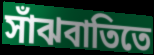
সাঁঝবাতিতে